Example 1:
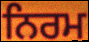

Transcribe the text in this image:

ਨਿਰਮ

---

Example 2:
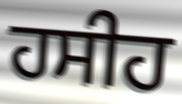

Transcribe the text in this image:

ਹਸੀਹ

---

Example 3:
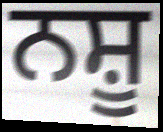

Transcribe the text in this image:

ਨਸ਼ੂ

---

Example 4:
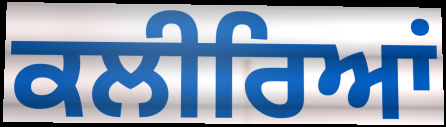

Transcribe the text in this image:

ਕਲੀਰਿਆਂ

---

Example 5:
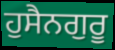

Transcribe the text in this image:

ਹੁਸੈਨਗੁਰੂ